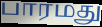
பாரமது